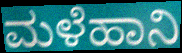
ಮಳೆಹಾನಿ